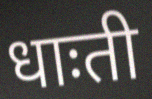
धाःती